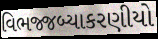
વિભજ્જબ્યાકરણીયો